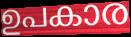
ഉപകാര